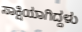
ಸಾಕ್ಷಿಯಾಗಿದ್ದಳು